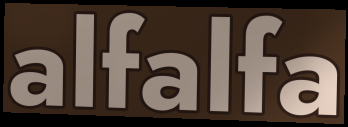
alfalfa